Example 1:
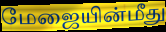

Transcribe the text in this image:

மேஜையின்மீது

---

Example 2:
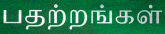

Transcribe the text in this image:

பதற்றங்கள்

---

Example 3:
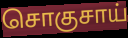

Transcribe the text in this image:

சொகுசாய்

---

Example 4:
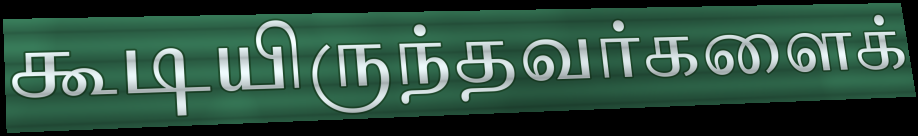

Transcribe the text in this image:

கூடியிருந்தவர்களைக்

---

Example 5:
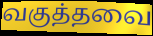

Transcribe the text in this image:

வகுத்தவை